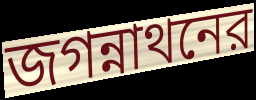
জগন্নাথনের